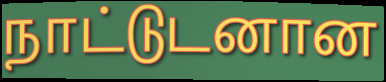
நாட்டுடனான